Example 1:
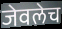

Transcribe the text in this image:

जेवलेच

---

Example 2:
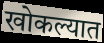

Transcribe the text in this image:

खोकल्यात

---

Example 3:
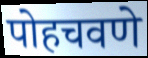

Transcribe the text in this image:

पोहचवणे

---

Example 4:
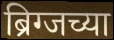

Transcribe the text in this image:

ब्रिग्जच्या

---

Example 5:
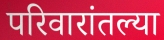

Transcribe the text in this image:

परिवारांतल्या